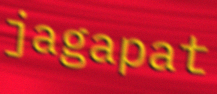
jagapat